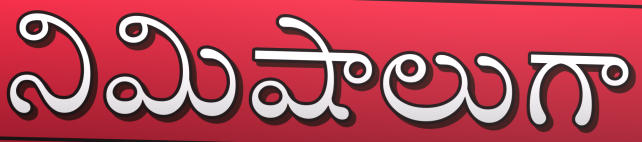
నిమిషాలుగా